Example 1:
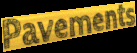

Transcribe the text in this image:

Pavements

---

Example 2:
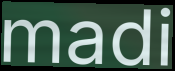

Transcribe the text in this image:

madi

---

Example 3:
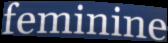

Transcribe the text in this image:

feminine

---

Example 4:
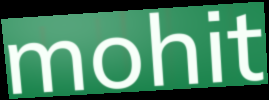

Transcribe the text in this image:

mohit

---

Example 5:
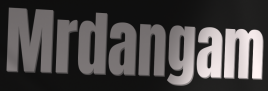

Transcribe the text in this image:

Mrdangam